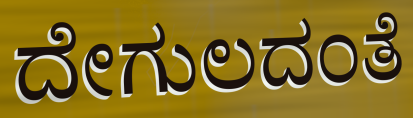
ದೇಗುಲದಂತೆ